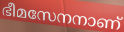
ഭീമസേനനാണ്